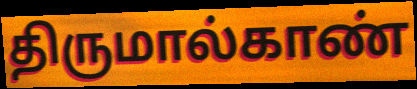
திருமால்காண்